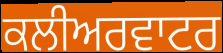
ਕਲੀਅਰਵਾਟਰ